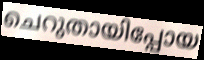
ചെറുതായിപ്പോയ